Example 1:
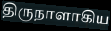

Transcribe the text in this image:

திருநாளாகிய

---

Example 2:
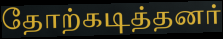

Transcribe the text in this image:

தோற்கடித்தனர்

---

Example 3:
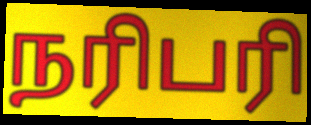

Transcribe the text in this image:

நரிபரி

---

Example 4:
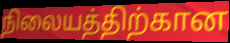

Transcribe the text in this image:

நிலையத்திற்கான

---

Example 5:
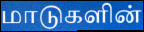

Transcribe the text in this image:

மாடுகளின்